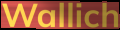
Wallich